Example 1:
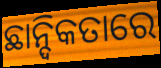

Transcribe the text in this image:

ଛାନ୍ଦିକତାରେ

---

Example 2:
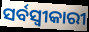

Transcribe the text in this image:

ସର୍ବସ୍ଵୀକାରୀ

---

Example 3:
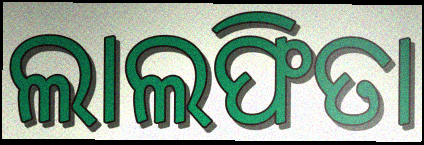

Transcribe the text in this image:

ଲାଲଫିତା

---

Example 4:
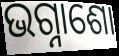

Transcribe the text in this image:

ଭଗ୍ନାଶୋ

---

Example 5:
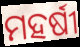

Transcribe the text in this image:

ମହର୍ଷୀ